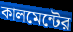
কালমেন্টের